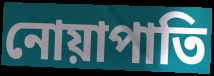
নোয়াপাতি